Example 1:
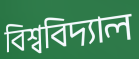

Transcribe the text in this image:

বিশ্ববিদ্যাল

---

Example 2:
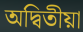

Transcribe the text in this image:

অদ্বিতীয়া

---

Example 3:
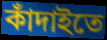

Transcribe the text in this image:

কাঁদাইতে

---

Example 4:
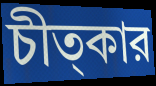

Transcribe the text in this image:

চীত্কার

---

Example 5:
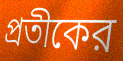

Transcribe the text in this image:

প্রতীকের